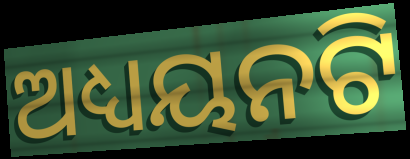
ଅଧ୍ୟୟନଟି